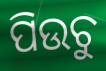
ପିଉଚୁ